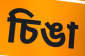
চিঙা